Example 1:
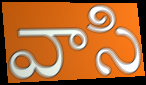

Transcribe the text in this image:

వాసి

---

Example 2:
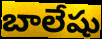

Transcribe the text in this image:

బాలేషు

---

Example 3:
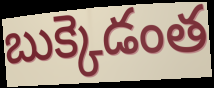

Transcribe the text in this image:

బుక్కెడంత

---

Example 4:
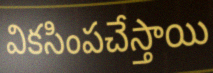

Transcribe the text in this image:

వికసింపచేస్తాయి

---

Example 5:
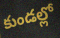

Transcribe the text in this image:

కుండల్లో